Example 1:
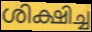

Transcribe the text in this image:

ശിക്ഷിച്ച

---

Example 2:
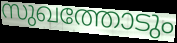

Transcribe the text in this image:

സുഖത്തോടും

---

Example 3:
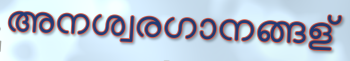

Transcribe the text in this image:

അനശ്വരഗാനങ്ങള്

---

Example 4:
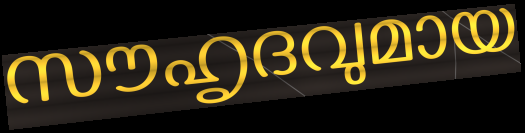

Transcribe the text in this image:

സൗഹൃദവുമായ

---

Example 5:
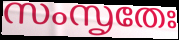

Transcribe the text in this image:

സംസൃതേഃ